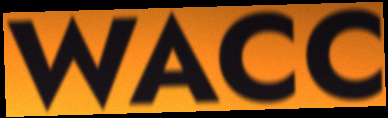
WACC